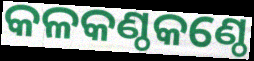
କଳକଣ୍ଠକଣ୍ଠେ